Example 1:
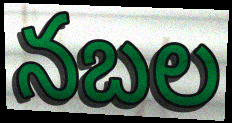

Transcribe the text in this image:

నబల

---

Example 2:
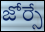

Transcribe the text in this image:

జోర్సే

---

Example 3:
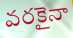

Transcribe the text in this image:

వరకైనా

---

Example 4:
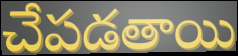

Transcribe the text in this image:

చేపడతాయి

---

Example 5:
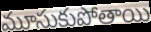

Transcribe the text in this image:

మూసుకుపోతాయి